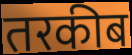
तरकीब